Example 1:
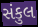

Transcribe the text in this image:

સંકુલ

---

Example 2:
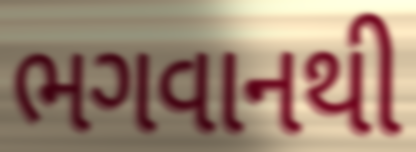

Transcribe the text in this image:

ભગવાનથી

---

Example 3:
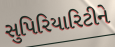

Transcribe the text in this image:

સુપિરિયારિટીને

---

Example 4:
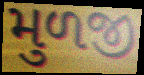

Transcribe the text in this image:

મુળજી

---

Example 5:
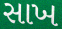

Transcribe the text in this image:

સાખ